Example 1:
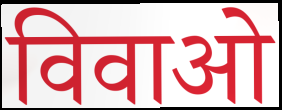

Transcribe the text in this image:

विवाओ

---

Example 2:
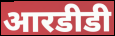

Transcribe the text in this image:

आरडीडी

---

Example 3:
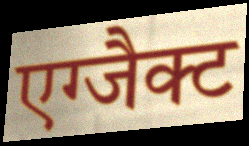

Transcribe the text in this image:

एग्जैक्ट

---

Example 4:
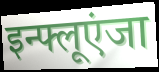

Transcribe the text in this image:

इन्फ्लूएंजा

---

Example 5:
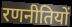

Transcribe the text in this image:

रणनीतियों